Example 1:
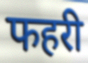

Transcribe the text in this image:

फहरी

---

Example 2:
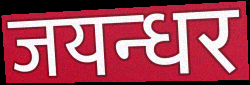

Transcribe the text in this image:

जयन्धर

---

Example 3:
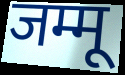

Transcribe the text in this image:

जम्‍मू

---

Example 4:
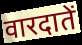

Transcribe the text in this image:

वारदातें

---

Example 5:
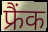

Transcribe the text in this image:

फ्रैंक